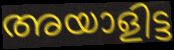
അയാളിട്ട